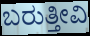
ಬರುತ್ತೀವಿ